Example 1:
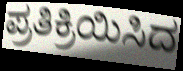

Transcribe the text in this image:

ಪ್ರತಿಕ್ರಿಯಿಸಿದ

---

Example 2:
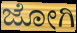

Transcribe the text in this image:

ಜೋಗಿ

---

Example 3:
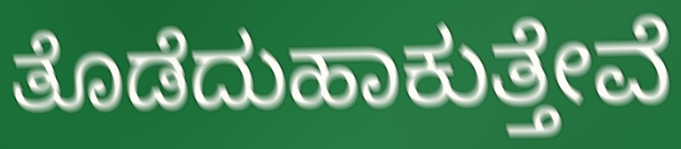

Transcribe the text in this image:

ತೊಡೆದುಹಾಕುತ್ತೇವೆ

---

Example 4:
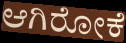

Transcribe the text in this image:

ಆಗಿರೋಕೆ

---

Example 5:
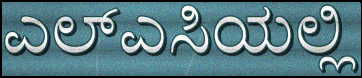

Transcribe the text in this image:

ಎಲ್ಎಸಿಯಲ್ಲಿ